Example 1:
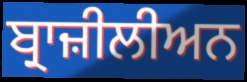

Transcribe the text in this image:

ਬ੍ਰਾਜ਼ੀਲੀਅਨ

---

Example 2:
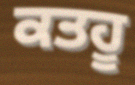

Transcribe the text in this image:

ਕਤਹੂ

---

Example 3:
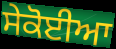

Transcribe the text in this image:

ਸੇਕੋਈਆ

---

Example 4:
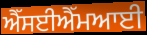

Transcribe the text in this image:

ਐੱਸਈਐੱਮਆਈ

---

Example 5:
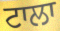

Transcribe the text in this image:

ਟਾਲਾ